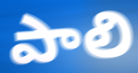
పాలి